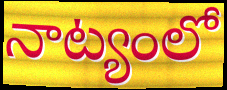
నాట్యంలో